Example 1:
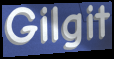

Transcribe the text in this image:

Gilgit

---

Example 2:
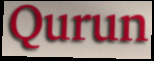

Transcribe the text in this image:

Qurun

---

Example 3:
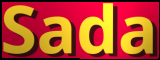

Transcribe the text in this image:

Sada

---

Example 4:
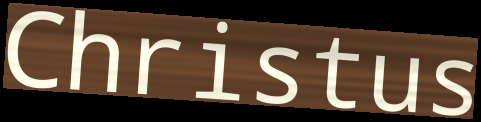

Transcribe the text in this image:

Christus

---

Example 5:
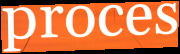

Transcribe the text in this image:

proces